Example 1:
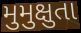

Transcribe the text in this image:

મુમુક્ષુતા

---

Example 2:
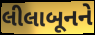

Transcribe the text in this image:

લીલાબૂનને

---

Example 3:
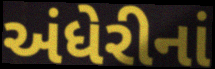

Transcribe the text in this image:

અંધેરીનાં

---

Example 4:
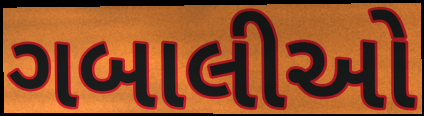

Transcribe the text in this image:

ગબાલીઓ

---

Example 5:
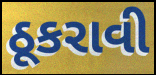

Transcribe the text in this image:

ઠૂકરાવી